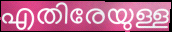
എതിരേയുള്ള